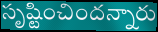
సృష్టించిందన్నారు